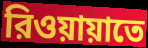
রিওয়ায়াতে